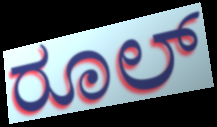
ರೂಲ್